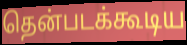
தென்படக்கூடிய